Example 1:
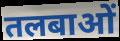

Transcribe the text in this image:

तलबाओं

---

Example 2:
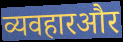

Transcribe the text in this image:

व्यवहारऔर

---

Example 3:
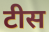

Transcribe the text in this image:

टीस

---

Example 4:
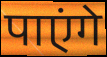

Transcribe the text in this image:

पाएंगे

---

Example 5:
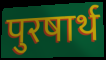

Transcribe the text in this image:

पुरषार्थ